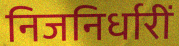
निजनिर्धारीं